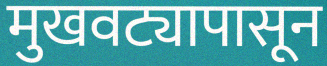
मुखवट्यापासून